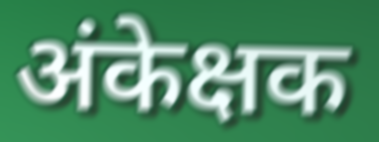
अंकेक्षक